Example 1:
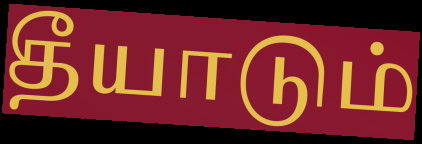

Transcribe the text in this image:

தீயாடும்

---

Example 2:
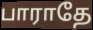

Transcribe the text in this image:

பாராதே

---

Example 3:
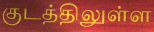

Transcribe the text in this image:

குடத்திலுள்ள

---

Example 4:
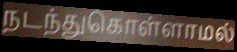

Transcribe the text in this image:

நடந்துகொள்ளாமல்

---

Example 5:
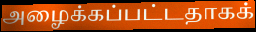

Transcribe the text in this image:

அழைக்கப்பட்டதாகக்